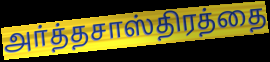
அர்த்தசாஸ்திரத்தை